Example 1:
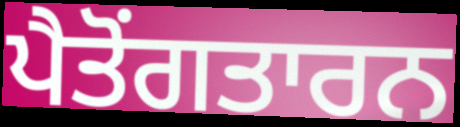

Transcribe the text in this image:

ਪੈਤੋਂਗਤਾਰਨ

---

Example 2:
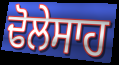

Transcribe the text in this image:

ਢੋਲੇਸਾਹ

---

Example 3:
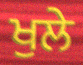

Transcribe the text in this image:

ਖੁਲੇ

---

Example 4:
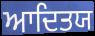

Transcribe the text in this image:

ਆਦਿਤਯ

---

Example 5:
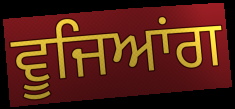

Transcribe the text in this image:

ਵੂਜਿਆਂਗ